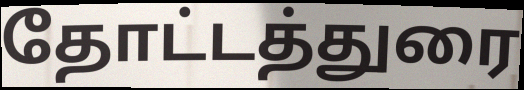
தோட்டத்துரை